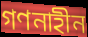
গণনাহীন